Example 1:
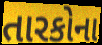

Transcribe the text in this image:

તારકોના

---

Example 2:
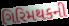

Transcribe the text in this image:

ગિરિમથકની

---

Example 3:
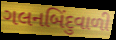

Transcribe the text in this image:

ગલનબિંદુવાળી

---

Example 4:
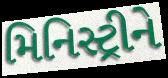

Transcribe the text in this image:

મિનિસ્ટ્રીને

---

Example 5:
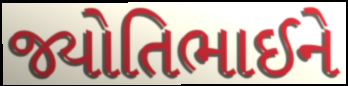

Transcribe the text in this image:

જ્યોતિભાઈને